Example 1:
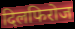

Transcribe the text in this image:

दिलफिरोज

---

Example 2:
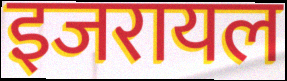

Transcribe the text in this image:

इजरायल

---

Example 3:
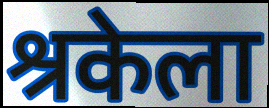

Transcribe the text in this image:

श्रकेला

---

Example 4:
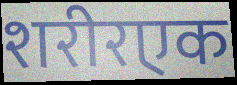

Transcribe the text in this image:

शरीरएक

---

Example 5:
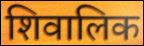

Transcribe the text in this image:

शिवालिक